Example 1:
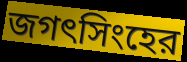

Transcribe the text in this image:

জগৎসিংহের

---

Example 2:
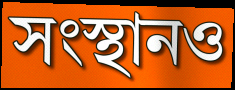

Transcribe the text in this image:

সংস্থানও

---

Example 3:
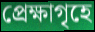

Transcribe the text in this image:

প্রেক্ষাগৃহে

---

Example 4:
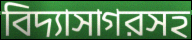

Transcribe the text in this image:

বিদ্যাসাগরসহ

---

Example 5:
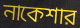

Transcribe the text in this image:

নাকেশার